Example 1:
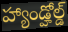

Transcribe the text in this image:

హ్యాండ్హోల్డ్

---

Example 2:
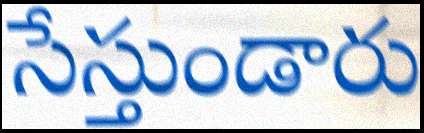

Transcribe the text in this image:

సేస్తుండారు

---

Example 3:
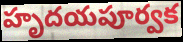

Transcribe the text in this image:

హృదయపూర్వక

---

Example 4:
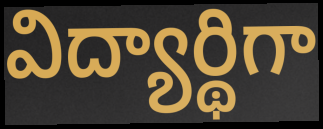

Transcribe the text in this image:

విద్యార్థిగా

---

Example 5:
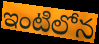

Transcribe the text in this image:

ఇంటిలోన